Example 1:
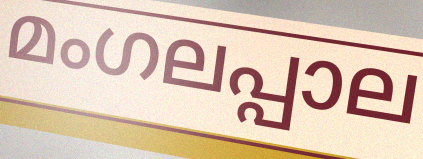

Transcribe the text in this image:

മംഗലപ്പാല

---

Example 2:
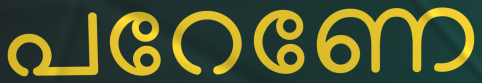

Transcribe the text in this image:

പറേണേ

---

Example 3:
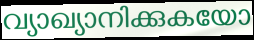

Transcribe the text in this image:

വ്യാഖ്യാനിക്കുകയോ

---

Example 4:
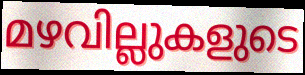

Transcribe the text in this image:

മഴവില്ലുകളുടെ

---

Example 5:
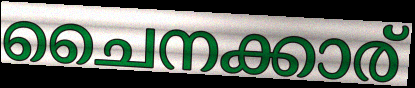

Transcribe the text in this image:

ചൈനക്കാര്